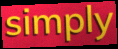
simply